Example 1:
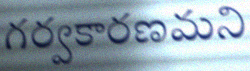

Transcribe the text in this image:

గర్వకారణమని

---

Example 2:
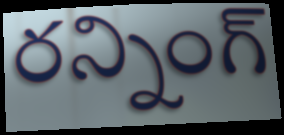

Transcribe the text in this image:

రన్నింగ్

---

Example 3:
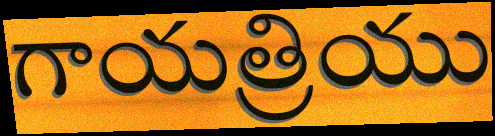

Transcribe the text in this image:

గాయత్రియు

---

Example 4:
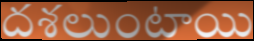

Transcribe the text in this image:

దశలుంటాయి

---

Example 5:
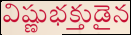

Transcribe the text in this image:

విష్ణుభక్తుడైన